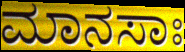
ಮಾನಸಾಃ